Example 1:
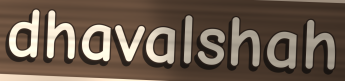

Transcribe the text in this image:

dhavalshah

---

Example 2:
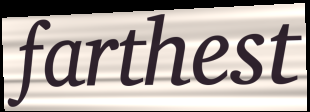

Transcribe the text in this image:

farthest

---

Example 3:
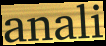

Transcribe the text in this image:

anali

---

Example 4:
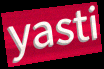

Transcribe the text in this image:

yasti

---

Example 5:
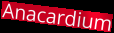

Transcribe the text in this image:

Anacardium